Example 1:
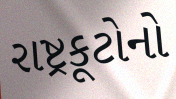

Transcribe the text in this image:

રાષ્ટ્રકૂટોનો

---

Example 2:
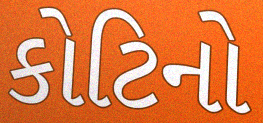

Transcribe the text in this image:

કોટિનો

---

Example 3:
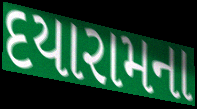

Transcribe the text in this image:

દયારામના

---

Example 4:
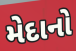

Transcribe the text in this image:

મેદાનો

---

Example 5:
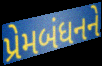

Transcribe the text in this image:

પ્રેમબંધનને